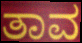
ತಾವ